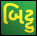
બિટ્ટુ